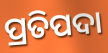
ପ୍ରତିପଦା